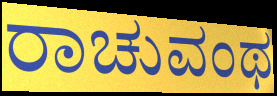
ರಾಚುವಂಥ